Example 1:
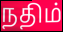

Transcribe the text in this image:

நதிம்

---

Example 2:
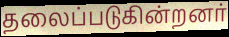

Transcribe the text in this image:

தலைப்படுகின்றனர்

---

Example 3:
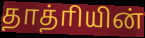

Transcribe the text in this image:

தாத்ரியின்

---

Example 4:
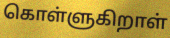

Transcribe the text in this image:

கொள்ளுகிறாள்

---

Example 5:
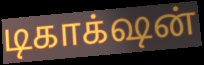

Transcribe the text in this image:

டிகாக்‌ஷன்